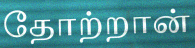
தோற்றான்